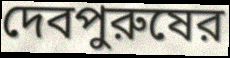
দেবপুরুষের